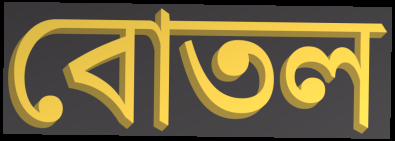
বোতল